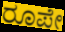
ರೂಪೇ